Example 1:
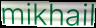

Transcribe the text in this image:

mikhail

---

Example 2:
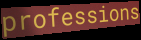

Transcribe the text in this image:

professions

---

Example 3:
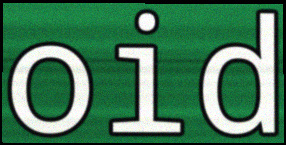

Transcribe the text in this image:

oid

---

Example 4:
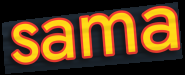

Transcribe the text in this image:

sama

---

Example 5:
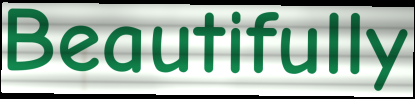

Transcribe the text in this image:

Beautifully